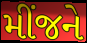
મીંજને